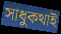
সাধুকথাই